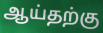
ஆய்தற்கு